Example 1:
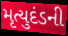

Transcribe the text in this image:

મૃત્યુદંડની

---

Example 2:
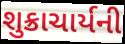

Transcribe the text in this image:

શુક્રાચાર્યની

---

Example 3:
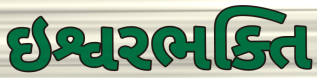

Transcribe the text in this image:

ઇશ્વરભક્તિ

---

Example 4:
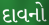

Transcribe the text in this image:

દાવનો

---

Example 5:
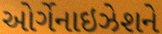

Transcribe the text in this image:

ઓર્ગેનાઇઝેશને